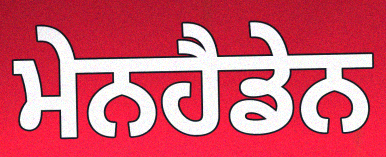
ਮੇਨਹੈਡੇਨ